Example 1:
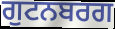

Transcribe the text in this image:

ਗੁਟਨਬਰਗ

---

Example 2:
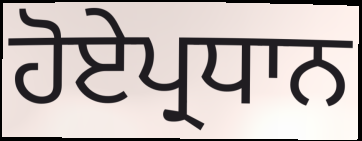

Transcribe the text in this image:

ਹੋਏਪ੍ਰਧਾਨ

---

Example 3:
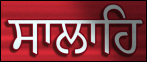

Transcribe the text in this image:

ਸਾਲਾਹਿ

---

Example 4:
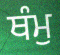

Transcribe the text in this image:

ਥੰਮੁ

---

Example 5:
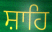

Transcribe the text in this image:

ਸ਼ਾਹਿ